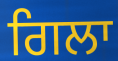
ਗਿਲਾ